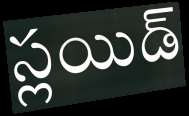
స్లయిడ్